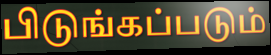
பிடுங்கப்படும்